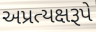
અપ્રત્યક્ષરૂપે